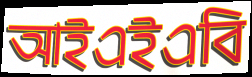
আইএইএবি